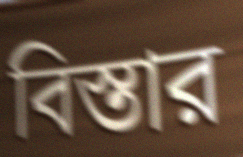
বিস্তার